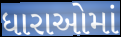
ધારાઓમાં